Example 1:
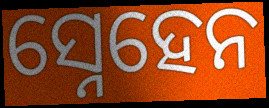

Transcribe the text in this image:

ସ୍ନେହେନ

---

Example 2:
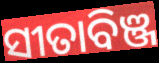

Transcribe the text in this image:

ସୀତାବିଞ୍ଜ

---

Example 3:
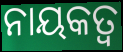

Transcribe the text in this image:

ନାୟକତ୍ୱ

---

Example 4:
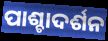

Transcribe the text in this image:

ପାଶ୍ଚାଦର୍ଶନ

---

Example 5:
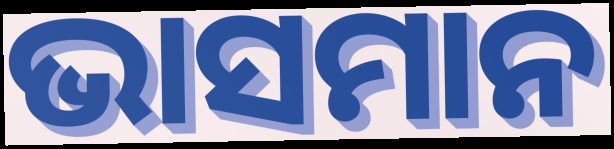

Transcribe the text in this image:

ଭାସମାନ